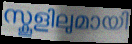
സ്കൂളിലുമായി